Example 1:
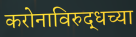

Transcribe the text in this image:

करोनाविरुद्धच्या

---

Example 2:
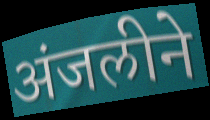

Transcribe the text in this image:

अंजलीने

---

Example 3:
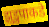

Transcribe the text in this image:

झुडुपाकडे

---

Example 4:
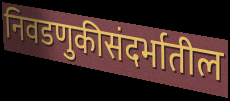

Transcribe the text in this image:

निवडणुकीसंदर्भातील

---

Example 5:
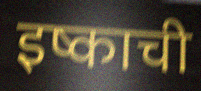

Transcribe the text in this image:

इष्काची